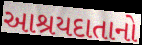
આશ્રયદાતાનો